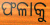
ଫଳାକୁ